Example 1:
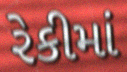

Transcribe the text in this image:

રેકીમાં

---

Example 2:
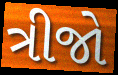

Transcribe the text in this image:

ત્રીજો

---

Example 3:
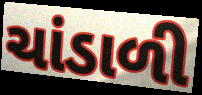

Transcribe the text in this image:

ચાંડાળી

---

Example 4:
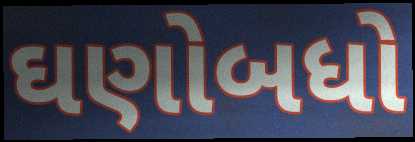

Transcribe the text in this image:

ઘણોબધો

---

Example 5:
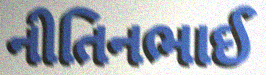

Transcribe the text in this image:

નીતિનભાઈ